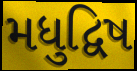
મધુદ્વિષ